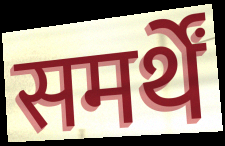
समर्थें